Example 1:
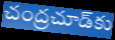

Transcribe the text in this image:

చంద్రచూడ్‌కు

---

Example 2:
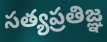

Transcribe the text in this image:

సత్యప్రతిజ్ఞ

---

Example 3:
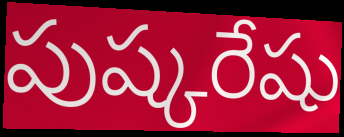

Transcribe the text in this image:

పుష్కరేషు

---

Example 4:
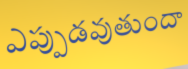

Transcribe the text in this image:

ఎప్పుడవుతుందా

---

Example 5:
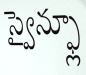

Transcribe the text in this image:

స్వైన్ఫ్లూ